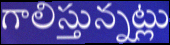
గాలిస్తున్నట్లు